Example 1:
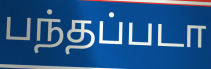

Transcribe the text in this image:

பந்தப்படா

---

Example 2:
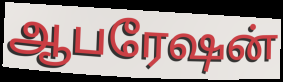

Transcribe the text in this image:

ஆபரேஷன்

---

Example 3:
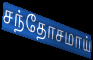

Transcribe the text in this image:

சந்தோசமாய்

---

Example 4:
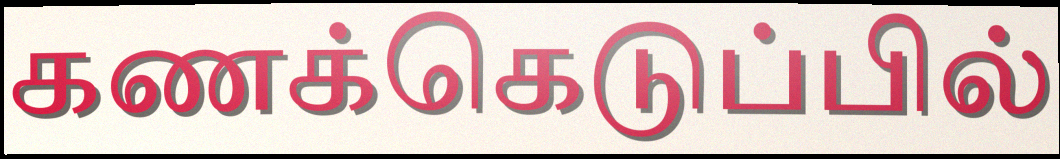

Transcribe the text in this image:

கணக்கெடுப்பில்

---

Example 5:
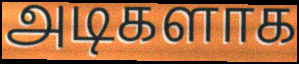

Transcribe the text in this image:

அடிகளாக